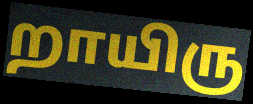
றாயிரு